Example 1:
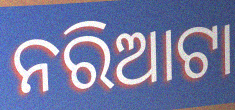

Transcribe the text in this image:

ନରିଆଟା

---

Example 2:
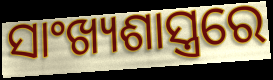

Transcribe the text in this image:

ସାଂଖ୍ୟଶାସ୍ତ୍ରରେ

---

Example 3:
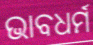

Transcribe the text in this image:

ଭାବଧର୍ମ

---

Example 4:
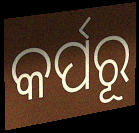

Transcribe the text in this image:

କର୍ପରୂ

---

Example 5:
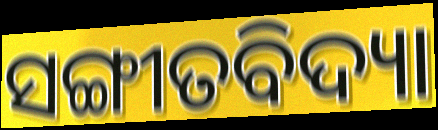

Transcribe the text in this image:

ସଙ୍ଗୀତବିଦ୍ୟା